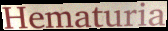
Hematuria